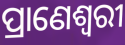
ପ୍ରାଣେଶ୍ୱରୀ